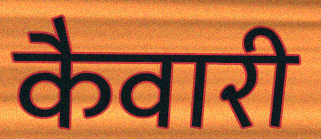
कैवारी